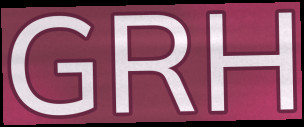
GRH